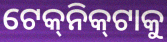
ଟେକ୍‌ନିକ୍‌ଟାକୁ